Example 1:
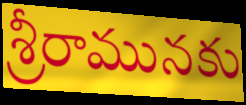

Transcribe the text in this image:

శ్రీరామునకు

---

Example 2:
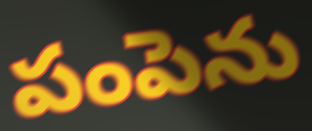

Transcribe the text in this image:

పంపెను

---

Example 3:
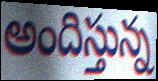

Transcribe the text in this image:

అందిస్తున్న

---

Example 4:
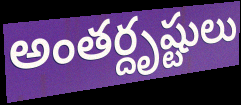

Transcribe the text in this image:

అంతర్దృష్టులు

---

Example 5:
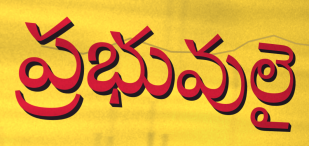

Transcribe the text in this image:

ప్రభువులై